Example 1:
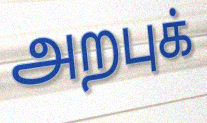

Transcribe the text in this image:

அறபுக்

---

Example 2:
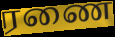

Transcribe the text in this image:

ரணை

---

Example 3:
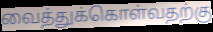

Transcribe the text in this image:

வைத்துக்கொள்வதற்கு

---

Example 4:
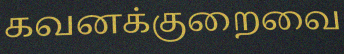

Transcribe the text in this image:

கவனக்குறைவை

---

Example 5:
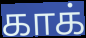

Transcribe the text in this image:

காக்